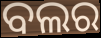
ବଲର